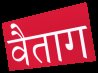
वैताग